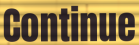
Continue